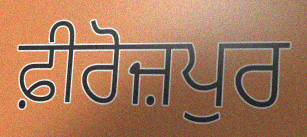
ਫ਼ੀਰੋਜ਼ਪੁਰ